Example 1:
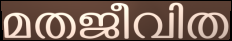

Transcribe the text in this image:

മതജീവിത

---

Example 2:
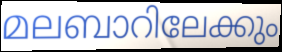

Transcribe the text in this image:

മലബാറിലേക്കും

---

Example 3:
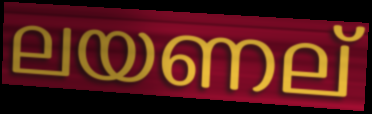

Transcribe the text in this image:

ലയണല്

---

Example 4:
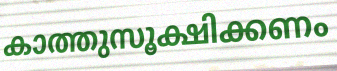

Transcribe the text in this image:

കാത്തുസൂക്ഷിക്കണം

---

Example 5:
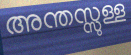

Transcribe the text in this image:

അന്തസ്സുള്ള